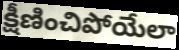
క్షీణించిపోయేలా